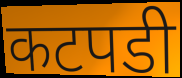
कटपडी